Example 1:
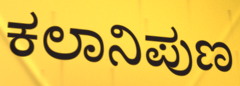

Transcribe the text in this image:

ಕಲಾನಿಪುಣ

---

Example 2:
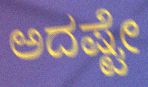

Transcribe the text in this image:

ಅದಷ್ಟೇ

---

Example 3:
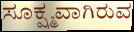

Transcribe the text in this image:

ಸೂಕ್ಷ್ಮವಾಗಿರುವ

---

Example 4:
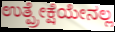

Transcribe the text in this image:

ಉತ್ಪ್ರೇಕ್ಷೆಯೇನಲ್ಲ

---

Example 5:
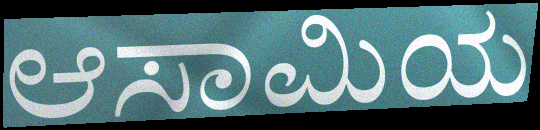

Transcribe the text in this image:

ಆಸಾಮಿಯ